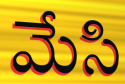
మేసి